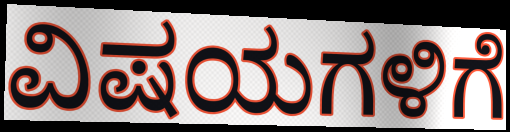
ವಿಷಯಗಳಿಗೆ